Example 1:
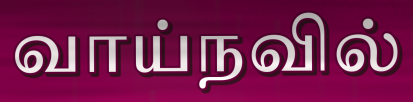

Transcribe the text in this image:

வாய்நவில்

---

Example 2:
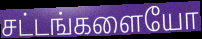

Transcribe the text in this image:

சட்டங்களையோ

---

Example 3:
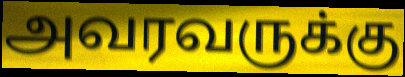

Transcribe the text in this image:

அவரவருக்கு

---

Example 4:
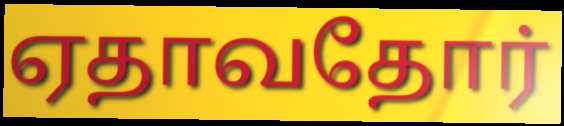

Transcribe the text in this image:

ஏதாவதோர்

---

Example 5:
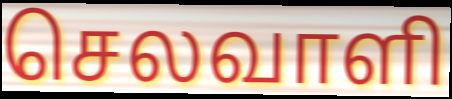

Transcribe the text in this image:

செலவாளி